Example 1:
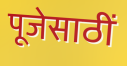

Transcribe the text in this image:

पूजेसाठीं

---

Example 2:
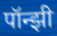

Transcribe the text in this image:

पॉन्झी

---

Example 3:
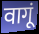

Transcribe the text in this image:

वागूं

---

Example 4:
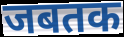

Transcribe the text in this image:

जबतक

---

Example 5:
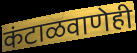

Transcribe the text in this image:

कंटाळवाणेही